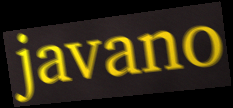
javano